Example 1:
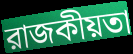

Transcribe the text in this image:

রাজকীয়তা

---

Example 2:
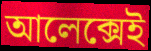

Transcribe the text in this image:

আলেক্সেই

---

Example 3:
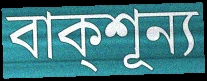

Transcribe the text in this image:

বাক্শূন্য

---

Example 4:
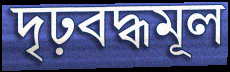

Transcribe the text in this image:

দৃঢ়বদ্ধমূল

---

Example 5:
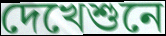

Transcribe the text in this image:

দেখেশুনে